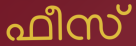
ഫീസ്